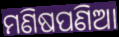
ମଣିଷପଣିଆ